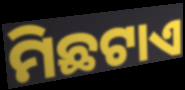
ମିଛଟାଏ